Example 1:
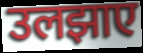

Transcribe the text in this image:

उलझाए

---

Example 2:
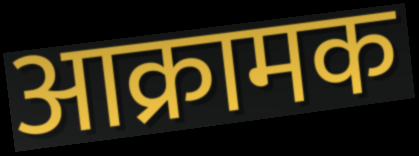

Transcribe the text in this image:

आक्रामक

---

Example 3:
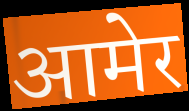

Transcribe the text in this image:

आमेर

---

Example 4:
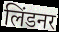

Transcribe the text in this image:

लिंडनर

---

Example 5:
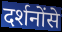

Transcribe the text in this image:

दर्शनोंसे